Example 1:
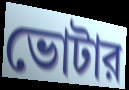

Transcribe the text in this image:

ভোটার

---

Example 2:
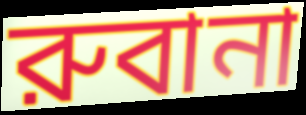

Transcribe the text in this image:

রুবানা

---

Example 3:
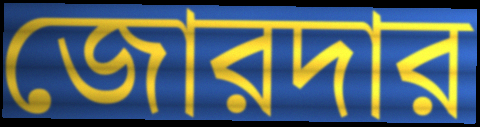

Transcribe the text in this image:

জোরদার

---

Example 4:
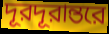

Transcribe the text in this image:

দূরদূরান্তরে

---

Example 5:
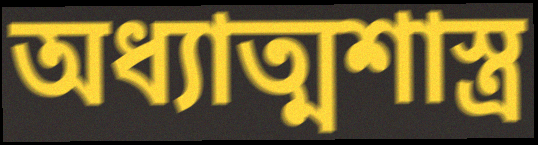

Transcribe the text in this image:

অধ্যাত্মশাস্ত্র